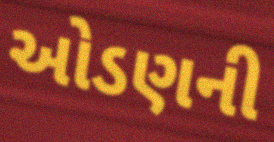
ઓડણની